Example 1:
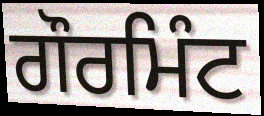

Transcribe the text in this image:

ਗੌਰਮਿੰਟ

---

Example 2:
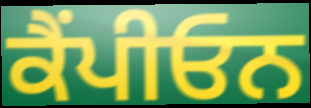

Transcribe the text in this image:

ਕੈਂਪੀਓਨ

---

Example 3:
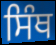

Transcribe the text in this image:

ਸਿੰਥ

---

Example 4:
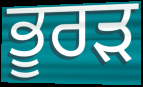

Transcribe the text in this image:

ਭੂਰੜ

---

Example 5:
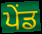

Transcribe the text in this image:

ਪੇਂਡ